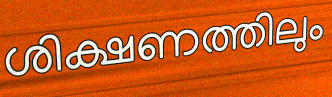
ശിക്ഷണത്തിലും